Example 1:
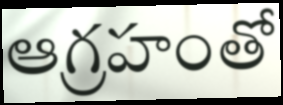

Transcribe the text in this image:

ఆగ్రహంతో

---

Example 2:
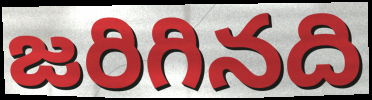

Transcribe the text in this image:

జరిగినది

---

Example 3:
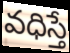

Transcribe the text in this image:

వధిస్తే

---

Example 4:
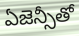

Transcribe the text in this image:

ఏజెన్సీతో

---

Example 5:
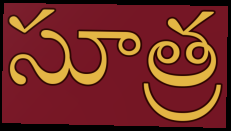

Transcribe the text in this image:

సూత్ర